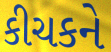
કીચકને